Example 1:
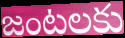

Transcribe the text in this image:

జంటలకు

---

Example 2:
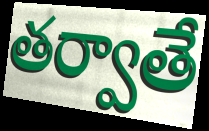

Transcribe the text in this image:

తర్వాతే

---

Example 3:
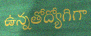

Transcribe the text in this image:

ఉన్నతోద్యోగిగా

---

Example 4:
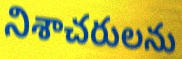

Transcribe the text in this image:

నిశాచరులను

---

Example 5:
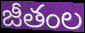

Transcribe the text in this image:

జీతంల